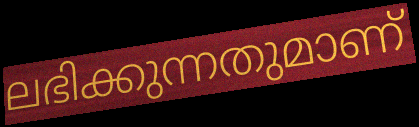
ലഭിക്കുന്നതുമാണ്